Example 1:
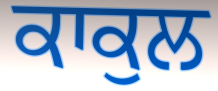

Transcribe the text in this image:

ਕਾਕੁਲ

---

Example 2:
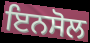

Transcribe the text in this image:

ਇਨਸੋਲ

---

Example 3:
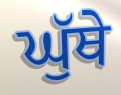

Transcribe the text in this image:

ਘੁੱਥੇ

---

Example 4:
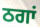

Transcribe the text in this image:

ਠਗਾਂ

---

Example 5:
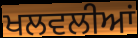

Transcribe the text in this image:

ਖਲਵਲੀਆਂ